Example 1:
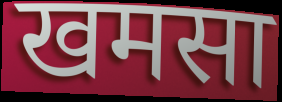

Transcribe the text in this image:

खमसा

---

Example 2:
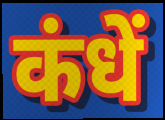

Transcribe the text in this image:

कंधें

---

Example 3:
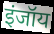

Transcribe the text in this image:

इंजॉय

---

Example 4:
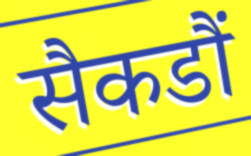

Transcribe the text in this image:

सैकडौं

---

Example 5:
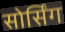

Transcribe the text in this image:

सोर्सिंग